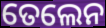
ତେଲେନ